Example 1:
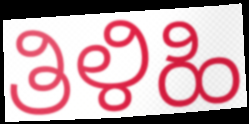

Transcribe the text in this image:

ತಿಳಿಹಿ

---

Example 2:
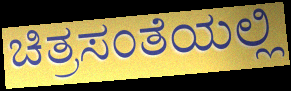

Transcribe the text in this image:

ಚಿತ್ರಸಂತೆಯಲ್ಲಿ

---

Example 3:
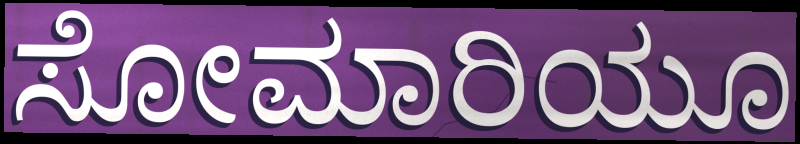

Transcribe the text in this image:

ಸೋಮಾರಿಯೂ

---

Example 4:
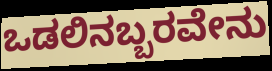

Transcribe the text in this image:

ಒಡಲಿನಬ್ಬರವೇನು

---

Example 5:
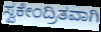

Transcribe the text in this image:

ಸ್ವಕೇಂದ್ರಿತವಾಗಿ